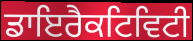
ਡਾਇਰੈਕਟਿਵਿਟੀ